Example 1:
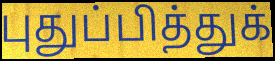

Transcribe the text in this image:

புதுப்பித்துக்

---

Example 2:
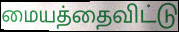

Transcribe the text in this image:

மையத்தைவிட்டு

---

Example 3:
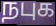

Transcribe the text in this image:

நபுக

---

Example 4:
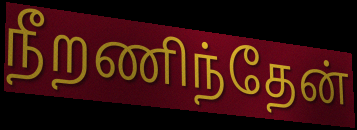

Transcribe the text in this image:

நீறணிந்தேன்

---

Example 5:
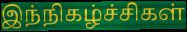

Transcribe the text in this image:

இந்நிகழ்ச்சிகள்